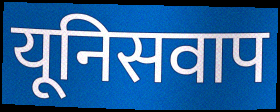
यूनिसवाप